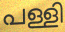
പള്ളി